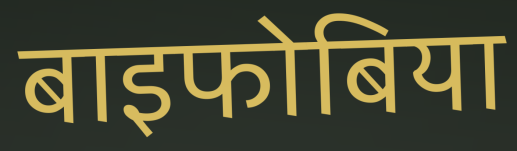
बाइफोबिया